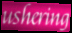
ushering